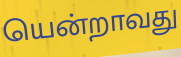
யென்றாவது